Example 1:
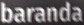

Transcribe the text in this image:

baranda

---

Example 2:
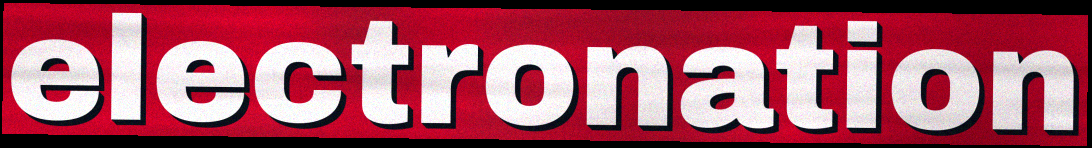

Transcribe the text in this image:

electronation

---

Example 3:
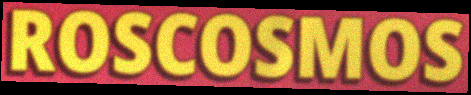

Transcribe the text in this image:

ROSCOSMOS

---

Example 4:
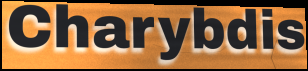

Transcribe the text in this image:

Charybdis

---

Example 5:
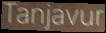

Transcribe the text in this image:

Tanjavur